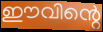
ഈവിന്റെ